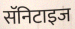
सॅनिटाइज